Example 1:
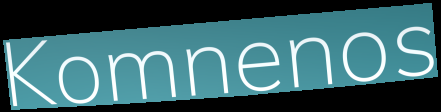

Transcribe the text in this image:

Komnenos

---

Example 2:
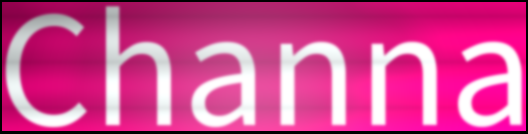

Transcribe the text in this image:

Channa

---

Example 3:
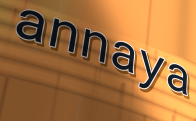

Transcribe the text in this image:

annaya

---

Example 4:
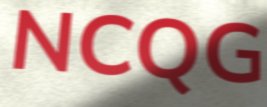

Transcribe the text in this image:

NCQG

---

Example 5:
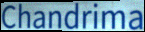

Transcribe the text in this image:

Chandrima